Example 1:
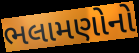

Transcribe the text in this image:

ભલામણોનો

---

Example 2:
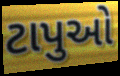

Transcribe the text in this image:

ટાપુઓ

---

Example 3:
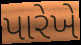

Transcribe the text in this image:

પારેખે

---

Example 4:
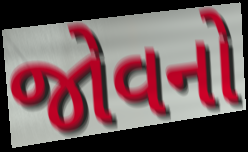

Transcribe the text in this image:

જોવનો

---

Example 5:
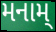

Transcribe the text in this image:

મનામ્